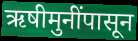
ऋषीमुनींपासून